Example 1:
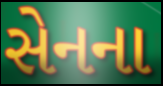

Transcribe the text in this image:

સેનના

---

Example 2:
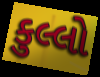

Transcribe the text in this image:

કુલ્લો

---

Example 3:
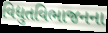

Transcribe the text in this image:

વિદ્યુતવિભાજનના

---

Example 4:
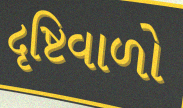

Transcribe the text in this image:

દૃષ્ટિવાળો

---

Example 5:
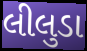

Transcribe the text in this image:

લીલુડા